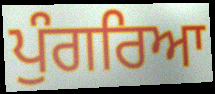
ਪੁੰਗਰਿਆ